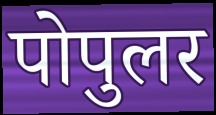
पोपुलर